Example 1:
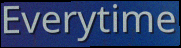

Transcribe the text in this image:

Everytime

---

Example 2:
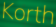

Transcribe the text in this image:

Korth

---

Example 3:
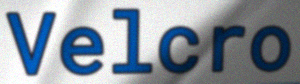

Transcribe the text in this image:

Velcro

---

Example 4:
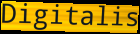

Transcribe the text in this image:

Digitalis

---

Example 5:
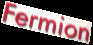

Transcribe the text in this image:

Fermion